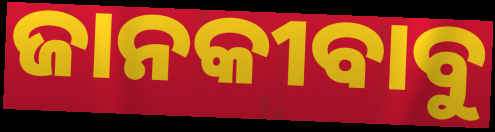
ଜାନକୀବାବୁ